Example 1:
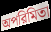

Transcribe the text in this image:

অপরিমিতা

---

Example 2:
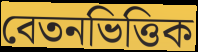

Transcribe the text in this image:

বেতনভিত্তিক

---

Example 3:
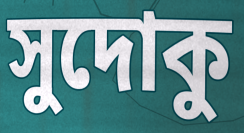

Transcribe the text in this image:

সুদোকু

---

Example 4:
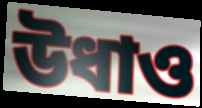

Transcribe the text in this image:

উধাও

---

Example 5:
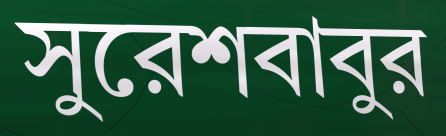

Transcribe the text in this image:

সুরেশবাবুর